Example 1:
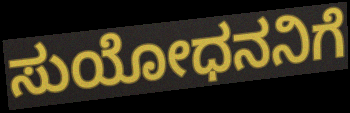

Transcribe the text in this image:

ಸುಯೋಧನನಿಗೆ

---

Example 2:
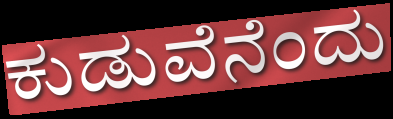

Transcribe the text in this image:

ಕುಡುವೆನೆಂದು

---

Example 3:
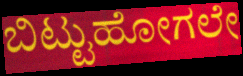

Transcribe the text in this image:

ಬಿಟ್ಟುಹೋಗಲೇ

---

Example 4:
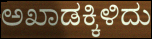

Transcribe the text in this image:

ಅಖಾಡಕ್ಕಿಳಿದು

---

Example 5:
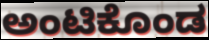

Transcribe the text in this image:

ಅಂಟಿಕೊಂಡ